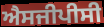
ਐਸਜੀਪੀਸੀ